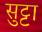
सुट्टा